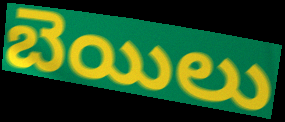
బెయిలు